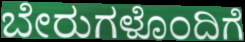
ಬೇರುಗಳೊಂದಿಗೆ